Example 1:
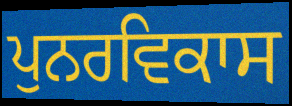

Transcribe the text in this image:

ਪੁਨਰਵਿਕਾਸ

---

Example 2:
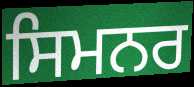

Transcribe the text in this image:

ਸਿਮਨਰ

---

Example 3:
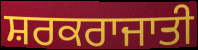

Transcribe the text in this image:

ਸ਼ਰਕਰਾਜਾਤੀ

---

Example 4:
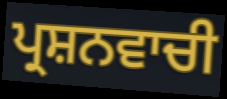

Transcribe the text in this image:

ਪ੍ਰਸ਼ਨਵਾਚੀ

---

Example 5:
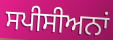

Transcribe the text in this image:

ਸਪੀਸੀਅਨਾਂ